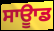
ਸਾਊਾਡ